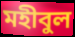
মহীবুল